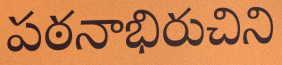
పఠనాభిరుచిని